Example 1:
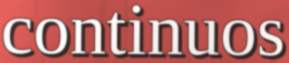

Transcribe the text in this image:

continuos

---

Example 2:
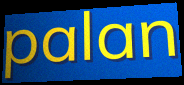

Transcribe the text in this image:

palan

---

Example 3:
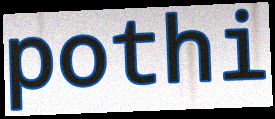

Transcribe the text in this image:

pothi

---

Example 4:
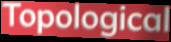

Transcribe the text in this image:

Topological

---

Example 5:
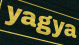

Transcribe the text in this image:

yagya